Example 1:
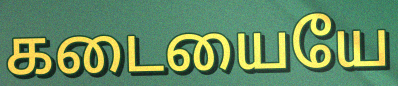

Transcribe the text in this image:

கடையையே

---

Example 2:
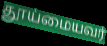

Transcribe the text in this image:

தூய்மையவர்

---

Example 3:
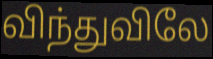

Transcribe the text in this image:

விந்துவிலே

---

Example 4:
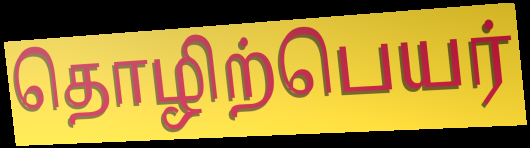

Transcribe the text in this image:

தொழிற்பெயர்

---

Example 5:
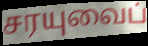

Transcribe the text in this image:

சரயுவைப்